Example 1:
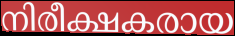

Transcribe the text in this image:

നിരീക്ഷകരായ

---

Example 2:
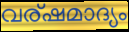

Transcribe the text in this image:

വര്ഷമാദ്യം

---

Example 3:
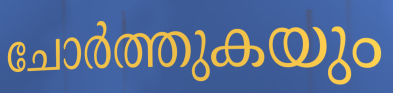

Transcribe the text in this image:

ചോർത്തുകയും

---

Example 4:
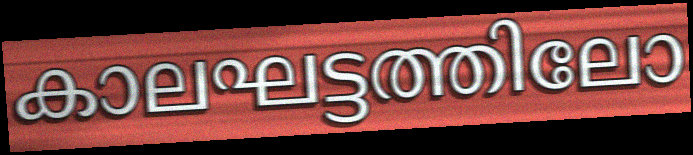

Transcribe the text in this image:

കാലഘട്ടത്തിലോ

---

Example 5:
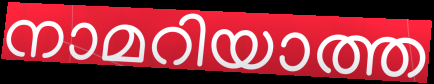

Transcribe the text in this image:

നാമറിയാത്ത